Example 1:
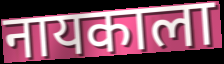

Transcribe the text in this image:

नायकाला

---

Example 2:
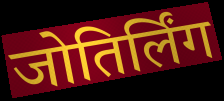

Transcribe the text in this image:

जोतिर्लिंग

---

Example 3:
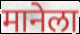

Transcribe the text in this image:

मानेला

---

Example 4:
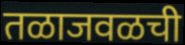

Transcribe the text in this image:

तळाजवळची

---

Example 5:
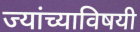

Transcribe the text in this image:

ज्यांच्याविषयी